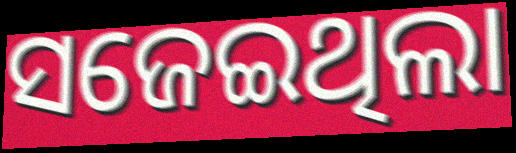
ସଜେଇଥିଲା